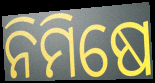
ନିମିଷେ